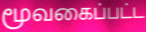
மூவகைப்பட்ட